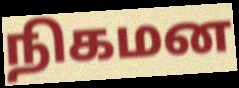
நிகமன